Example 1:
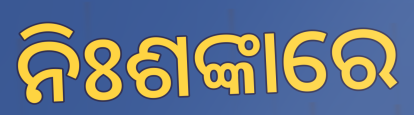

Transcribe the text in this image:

ନିଃଶଙ୍କାରେ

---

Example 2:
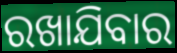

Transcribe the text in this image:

ରଖାଯିବାର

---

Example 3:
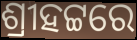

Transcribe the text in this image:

ଶ୍ରୀହଟ୍ଟରେ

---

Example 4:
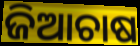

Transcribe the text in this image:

ଜିଆଚାଷ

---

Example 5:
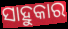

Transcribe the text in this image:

ସାହୁକାର